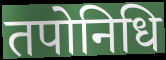
तपोनिधि